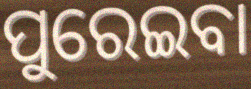
ପୁରେଇବା